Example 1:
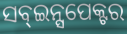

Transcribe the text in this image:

ସବ୍ଇନ୍ସପେକ୍ଟର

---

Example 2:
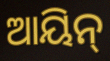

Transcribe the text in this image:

ଆୟିନ୍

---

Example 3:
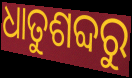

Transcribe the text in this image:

ଧାତୁଶବ୍ଦରୁ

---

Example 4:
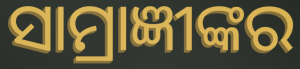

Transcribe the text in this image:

ସାମ୍ରାଜ୍ଞୀଙ୍କର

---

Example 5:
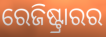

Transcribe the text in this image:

ରେଜିଷ୍ଟ୍ରାରର